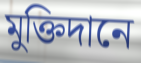
মুক্তিদানে